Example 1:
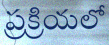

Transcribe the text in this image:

ప్రక్రియలో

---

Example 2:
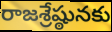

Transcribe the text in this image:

రాజశ్రేష్ఠునకు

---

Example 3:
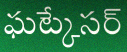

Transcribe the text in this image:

ఘట్కేసర్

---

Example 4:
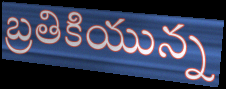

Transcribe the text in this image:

బ్రతికియున్న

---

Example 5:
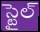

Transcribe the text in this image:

స్టైల్